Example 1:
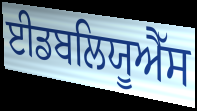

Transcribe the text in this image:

ਈਡਬਲਿਯੂਐੱਸ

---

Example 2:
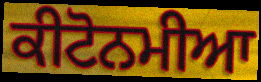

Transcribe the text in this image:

ਕੀਟੋਨਮੀਆ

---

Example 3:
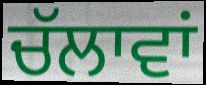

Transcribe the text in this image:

ਚੱਲਾਵਾਂ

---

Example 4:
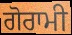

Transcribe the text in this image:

ਗੋਰਾਮੀ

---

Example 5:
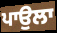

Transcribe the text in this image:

ਪਾਉਲਾ